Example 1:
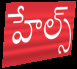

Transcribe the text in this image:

హేల్స్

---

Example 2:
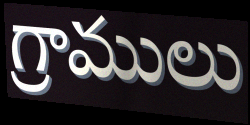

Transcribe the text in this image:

గ్రాములు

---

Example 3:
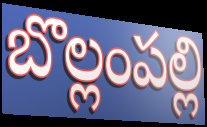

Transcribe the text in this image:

బొల్లంపల్లి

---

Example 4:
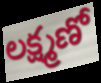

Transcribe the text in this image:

లక్ష్మణో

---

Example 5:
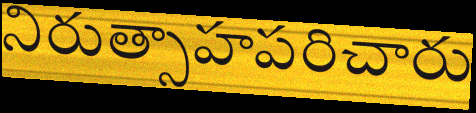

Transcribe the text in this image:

నిరుత్సాహపరిచారు